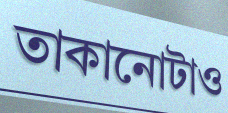
তাকানোটাও